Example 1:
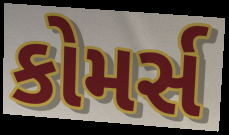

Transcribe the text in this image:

કોમર્સ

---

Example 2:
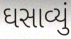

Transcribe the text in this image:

ઘસાવ્યું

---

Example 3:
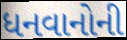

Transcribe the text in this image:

ધનવાનોની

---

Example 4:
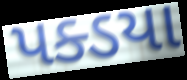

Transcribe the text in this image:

પક્ડયા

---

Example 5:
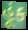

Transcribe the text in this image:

હૂંક